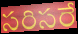
సరిసరే